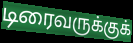
டிரைவருக்குக்